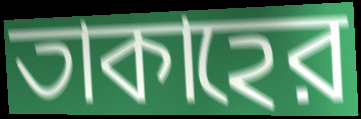
তাকাহের